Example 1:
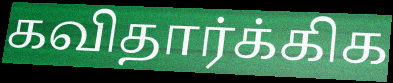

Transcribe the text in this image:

கவிதார்க்கிக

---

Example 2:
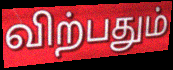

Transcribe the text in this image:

விற்பதும்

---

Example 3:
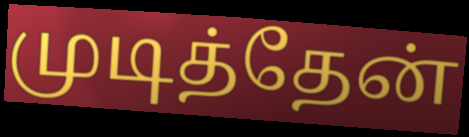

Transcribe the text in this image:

முடித்தேன்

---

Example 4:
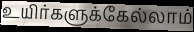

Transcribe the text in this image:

உயிர்களுக்கேல்லாம்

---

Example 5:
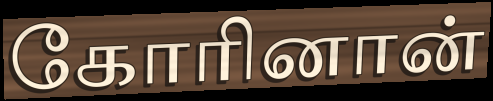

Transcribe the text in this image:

கோரினான்